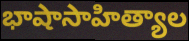
భాషాసాహిత్యాల